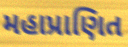
મહાપ્રાણિત